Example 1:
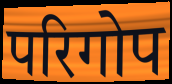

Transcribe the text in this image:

परिगोप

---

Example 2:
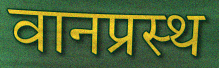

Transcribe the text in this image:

वानप्रस्थ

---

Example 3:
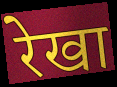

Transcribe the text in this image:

रेखा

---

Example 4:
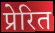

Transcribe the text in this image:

प्रेरित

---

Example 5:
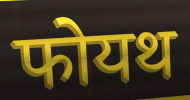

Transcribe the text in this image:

फोयथ